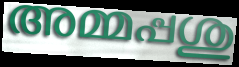
അമ്മപ്പശു